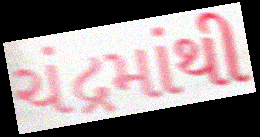
ચંદ્રમાંથી